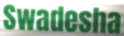
Swadesha